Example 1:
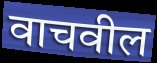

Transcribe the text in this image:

वाचवील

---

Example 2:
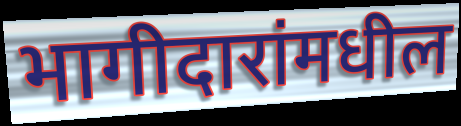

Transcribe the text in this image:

भागीदारांमधील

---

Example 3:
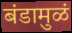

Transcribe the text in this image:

बंडामुळं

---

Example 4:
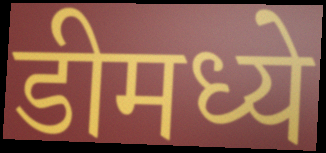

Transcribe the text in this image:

डीमध्ये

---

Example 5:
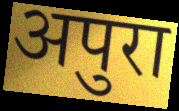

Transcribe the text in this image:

अपुरा